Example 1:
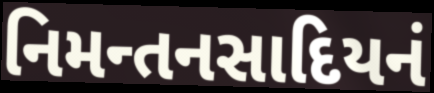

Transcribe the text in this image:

નિમન્તનસાદિયનં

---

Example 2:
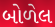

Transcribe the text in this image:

બોળેલ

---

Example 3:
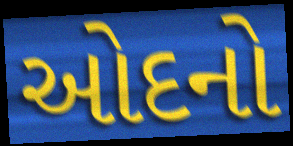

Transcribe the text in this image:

ઓદનો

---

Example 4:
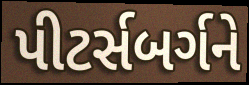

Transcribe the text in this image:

પીટર્સબર્ગને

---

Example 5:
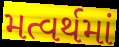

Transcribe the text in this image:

મત્વર્થમાં